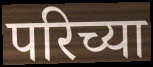
परिच्या